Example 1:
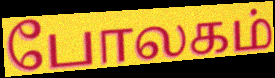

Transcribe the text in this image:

போலகம்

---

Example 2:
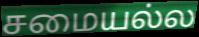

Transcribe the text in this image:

சமையல்ல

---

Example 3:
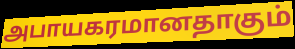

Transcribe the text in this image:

அபாயகரமானதாகும்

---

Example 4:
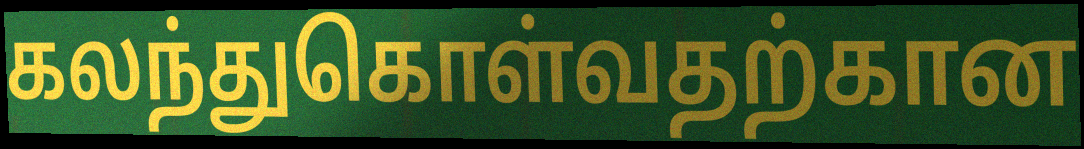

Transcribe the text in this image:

கலந்துகொள்வதற்கான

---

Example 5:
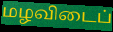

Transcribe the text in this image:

மழவிடைப்